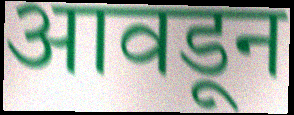
आवडून